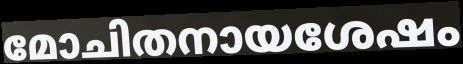
മോചിതനായശേഷം